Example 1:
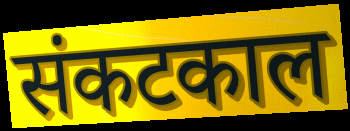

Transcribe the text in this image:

संकटकाल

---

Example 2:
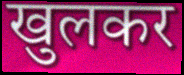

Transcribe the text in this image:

खुलकर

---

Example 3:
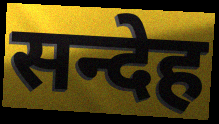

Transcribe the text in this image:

सन्देह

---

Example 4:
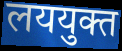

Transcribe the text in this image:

लययुक्त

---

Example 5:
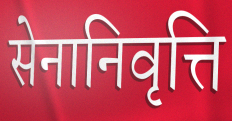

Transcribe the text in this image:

सेनानिवृत्ति